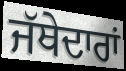
ਜੱਥੇਦਾਰਾਂ